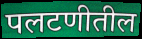
पलटणीतील